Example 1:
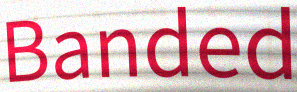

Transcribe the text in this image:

Banded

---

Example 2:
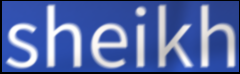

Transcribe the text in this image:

sheikh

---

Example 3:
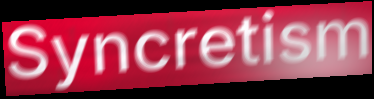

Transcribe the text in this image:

Syncretism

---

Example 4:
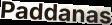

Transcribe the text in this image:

Paddanas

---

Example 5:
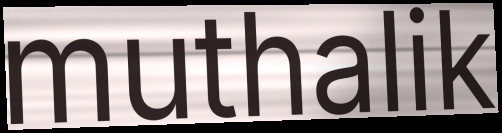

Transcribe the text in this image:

muthalik